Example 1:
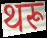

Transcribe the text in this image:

थरू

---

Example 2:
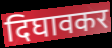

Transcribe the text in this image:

दिघावकर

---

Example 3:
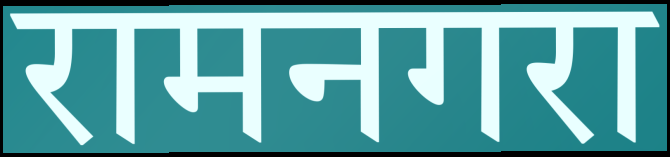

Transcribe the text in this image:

रामनगरा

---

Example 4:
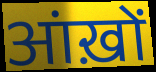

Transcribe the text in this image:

आंख़ों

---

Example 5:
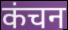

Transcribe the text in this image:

कंचन